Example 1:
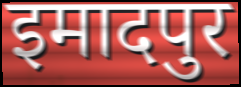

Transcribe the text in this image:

इमादपुर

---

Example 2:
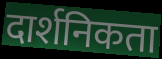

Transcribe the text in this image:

दार्शनिकता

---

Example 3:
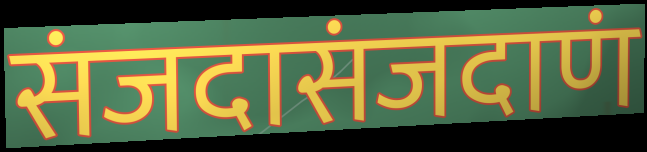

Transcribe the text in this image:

संजदासंजदाणं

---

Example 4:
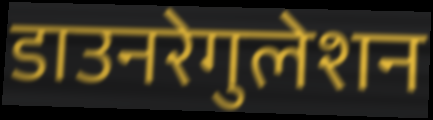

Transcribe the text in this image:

डाउनरेगुलेशन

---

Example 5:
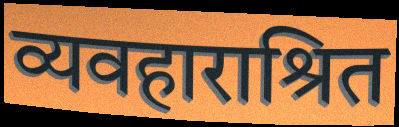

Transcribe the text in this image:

व्यवहाराश्रित